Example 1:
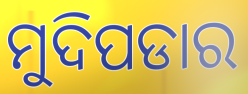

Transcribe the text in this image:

ମୁଦିପଡାର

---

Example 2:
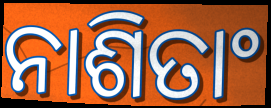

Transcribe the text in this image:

ନାଶିତାଂ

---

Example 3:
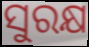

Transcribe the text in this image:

ସୁରକ୍ଷ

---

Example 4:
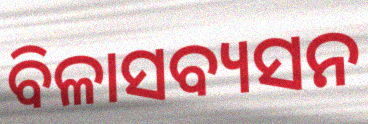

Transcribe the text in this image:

ବିଳାସବ୍ୟସନ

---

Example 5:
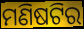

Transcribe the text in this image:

ମଣିଷଟିର